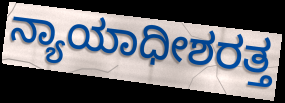
ನ್ಯಾಯಾಧೀಶರತ್ತ